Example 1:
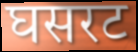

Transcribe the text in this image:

घसरट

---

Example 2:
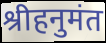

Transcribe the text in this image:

श्रीहनुमंत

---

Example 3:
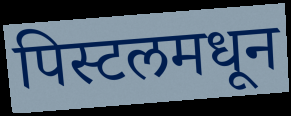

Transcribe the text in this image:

पिस्टलमधून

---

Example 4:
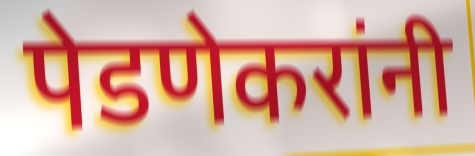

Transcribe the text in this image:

पेडणेकरांनी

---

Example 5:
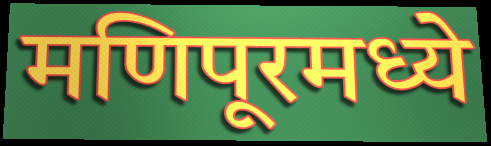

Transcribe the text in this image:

मणिपूरमध्ये